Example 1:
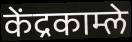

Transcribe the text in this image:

केंद्रकाम्ले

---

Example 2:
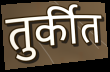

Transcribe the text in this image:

तुर्कीत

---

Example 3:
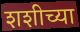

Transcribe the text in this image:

शशीच्या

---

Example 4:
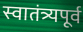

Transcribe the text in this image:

स्वातंत्र्यपूर्व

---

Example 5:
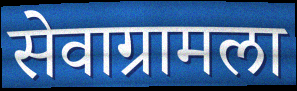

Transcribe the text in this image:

सेवाग्रामला